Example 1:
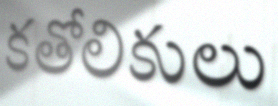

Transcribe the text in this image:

కతోలికులు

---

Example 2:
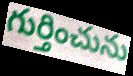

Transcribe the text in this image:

గుర్తించును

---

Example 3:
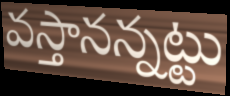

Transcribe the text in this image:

వస్తానన్నట్టు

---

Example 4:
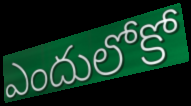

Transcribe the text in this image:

ఎందులోకో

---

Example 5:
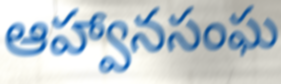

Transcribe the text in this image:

ఆహ్వానసంఘ